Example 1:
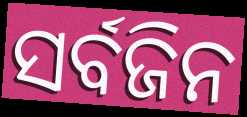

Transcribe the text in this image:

ସର୍ବଜିନ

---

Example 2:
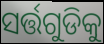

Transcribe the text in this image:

ସର୍ତ୍ତଗୁଡିକୁ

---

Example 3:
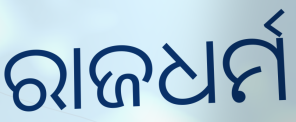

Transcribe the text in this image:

ରାଜଧର୍ମ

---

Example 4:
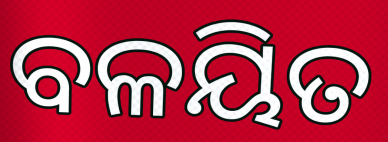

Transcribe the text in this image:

ବଳୟିତ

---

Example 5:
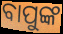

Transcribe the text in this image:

ବାପୁଙ୍କ